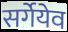
सर्गेयेव